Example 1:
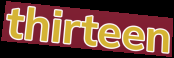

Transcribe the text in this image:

thirteen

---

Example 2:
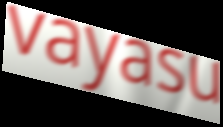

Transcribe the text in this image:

vayasu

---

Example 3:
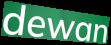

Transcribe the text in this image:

dewan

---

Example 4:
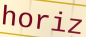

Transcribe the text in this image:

horiz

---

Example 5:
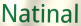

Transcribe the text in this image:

Natinal